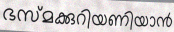
ഭസ്മക്കുറിയണിയാൻ